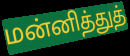
மன்னித்துத்